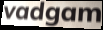
vadgam